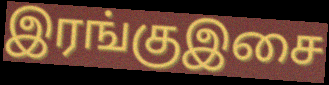
இரங்குஇசை